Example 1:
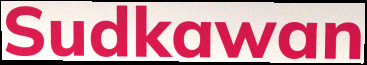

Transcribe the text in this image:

Sudkawan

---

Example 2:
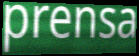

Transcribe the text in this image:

prensa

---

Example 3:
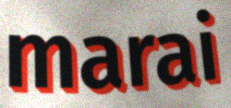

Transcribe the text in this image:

marai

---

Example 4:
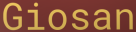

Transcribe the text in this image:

Giosan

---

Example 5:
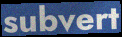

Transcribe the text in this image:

subvert